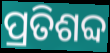
ପ୍ରତିଶବ୍ଦ